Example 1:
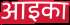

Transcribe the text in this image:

आइका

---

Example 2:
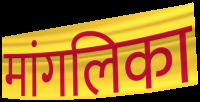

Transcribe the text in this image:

मांगलिका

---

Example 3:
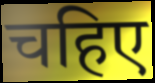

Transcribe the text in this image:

चहिए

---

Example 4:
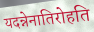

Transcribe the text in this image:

यदन्नेनातिरोहति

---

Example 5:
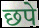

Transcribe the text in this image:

छपे